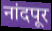
नांदपूर